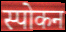
स्पोकन